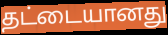
தட்டையானது